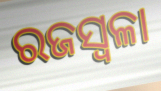
ରଜସ୍ବଳା